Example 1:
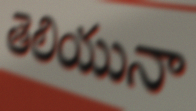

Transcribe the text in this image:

తెలియునా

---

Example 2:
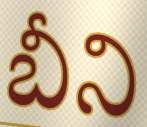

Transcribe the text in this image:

బీని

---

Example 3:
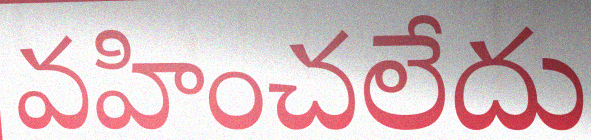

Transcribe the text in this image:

వహించలేదు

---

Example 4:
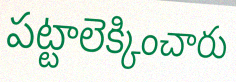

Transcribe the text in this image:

పట్టాలెక్కించారు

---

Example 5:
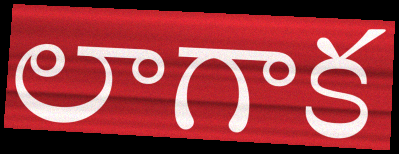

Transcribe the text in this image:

లాగాక